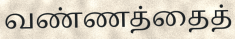
வண்ணத்தைத்